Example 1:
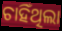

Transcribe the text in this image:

ଚାହିଁଥିଲା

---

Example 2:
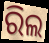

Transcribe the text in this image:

ରିଲ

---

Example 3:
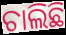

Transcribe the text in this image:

ଚାଲିଛି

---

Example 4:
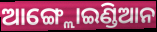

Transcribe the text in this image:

ଆଙ୍ଗ୍ଲୋଇଣ୍ଡିଆନ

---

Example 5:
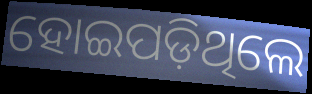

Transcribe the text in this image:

ହୋଇପଡ଼ିଥିଲେ